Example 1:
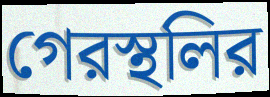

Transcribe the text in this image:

গেরস্থলির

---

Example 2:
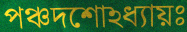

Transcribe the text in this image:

পঞ্চদশোঽধ্যায়ঃ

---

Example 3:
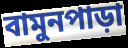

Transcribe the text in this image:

বামুনপাড়া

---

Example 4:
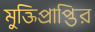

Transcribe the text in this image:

মুক্তিপ্রাপ্তির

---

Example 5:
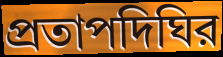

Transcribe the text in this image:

প্রতাপদিঘির